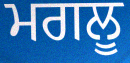
ਮਗਲੂ